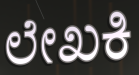
ಲೇಖಕಿ